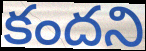
కందని